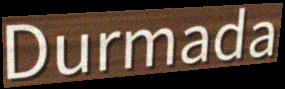
Durmada